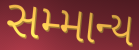
સમ્માન્ય